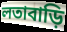
লতাবাড়ি